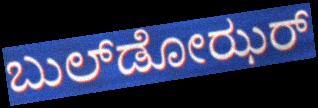
ಬುಲ್‌ಡೋಝರ್